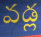
వడ్ల